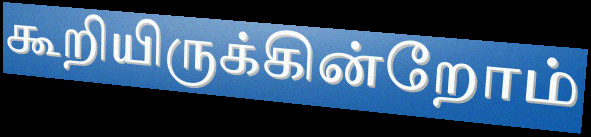
கூறியிருக்கின்றோம்